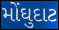
મોંઘુદાટ